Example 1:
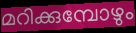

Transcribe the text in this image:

മറിക്കുമ്പോഴും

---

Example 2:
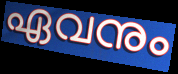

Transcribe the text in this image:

ഏവനും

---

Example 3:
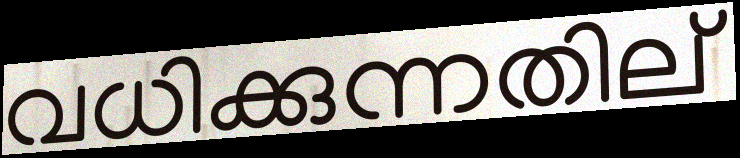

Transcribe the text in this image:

വധിക്കുന്നതില്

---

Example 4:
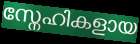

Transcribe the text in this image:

സ്നേഹികളായ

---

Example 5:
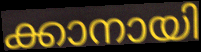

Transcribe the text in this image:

ക്കാനായി